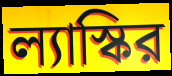
ল্যাস্কির